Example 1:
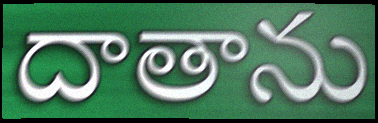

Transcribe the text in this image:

దాతాను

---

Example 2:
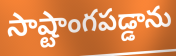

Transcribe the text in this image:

సాష్టాంగపడ్డాను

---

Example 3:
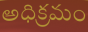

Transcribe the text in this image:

అధిక్రమం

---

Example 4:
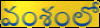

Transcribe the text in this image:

వంశంలో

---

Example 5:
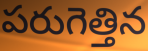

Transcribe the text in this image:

పరుగెత్తిన